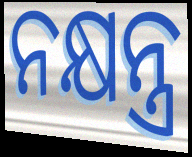
ନକ୍ଷନ୍ତ୍ର